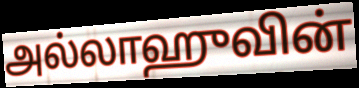
அல்லாஹுவின்